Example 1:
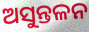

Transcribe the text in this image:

ଅସୁନ୍ତଳନ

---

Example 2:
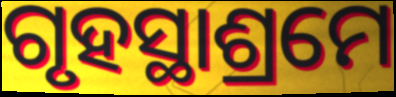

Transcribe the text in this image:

ଗୃହସ୍ଥାଶ୍ରମେ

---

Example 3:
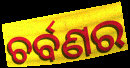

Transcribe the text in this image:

ଚର୍ବଣର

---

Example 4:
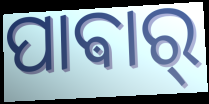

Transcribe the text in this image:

ପାଵାର୍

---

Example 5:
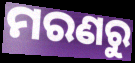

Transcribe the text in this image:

ମରଣରୁ